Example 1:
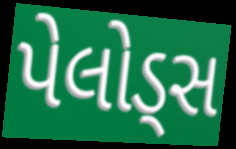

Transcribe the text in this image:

પેલોડ્સ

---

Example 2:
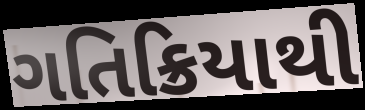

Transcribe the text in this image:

ગતિક્રિયાથી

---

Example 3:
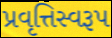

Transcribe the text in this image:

પ્રવૃત્તિસ્વરૂપ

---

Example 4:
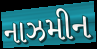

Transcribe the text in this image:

નાઝમીન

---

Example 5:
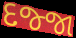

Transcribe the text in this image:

દજ્જા